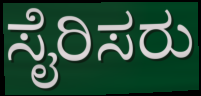
ಸೈರಿಸರು